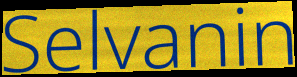
Selvanin